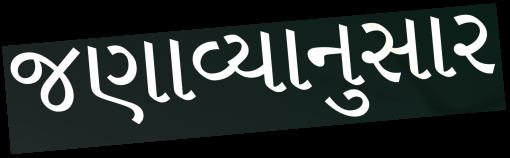
જણાવ્યાનુસાર